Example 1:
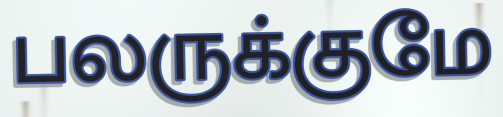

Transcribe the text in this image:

பலருக்குமே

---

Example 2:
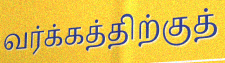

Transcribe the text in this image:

வர்க்கத்திற்குத்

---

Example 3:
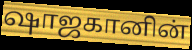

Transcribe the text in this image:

ஷாஜகானின்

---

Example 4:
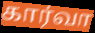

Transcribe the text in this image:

கார்வா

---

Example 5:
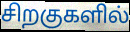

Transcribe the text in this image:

சிறகுகளில்